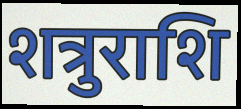
शत्रुराशि